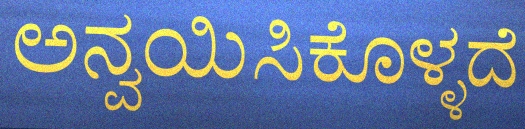
ಅನ್ವಯಿಸಿಕೊಳ್ಳದೆ